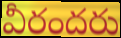
వీరందరు